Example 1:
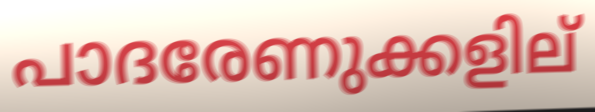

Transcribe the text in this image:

പാദരേണുക്കളില്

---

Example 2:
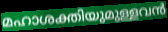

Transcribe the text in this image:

മഹാശക്തിയുമുള്ളവൻ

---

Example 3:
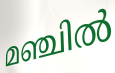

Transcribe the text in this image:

മഞ്ചിൽ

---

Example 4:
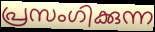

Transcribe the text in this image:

പ്രസംഗിക്കുന്ന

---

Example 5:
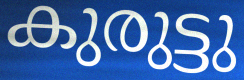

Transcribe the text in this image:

കുരുട്ടു